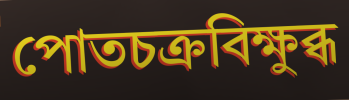
পোতচক্রবিক্ষুব্ধ